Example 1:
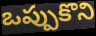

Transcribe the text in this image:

ఒప్పుకొని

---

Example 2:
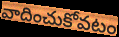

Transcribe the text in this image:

వాదించుకోవటం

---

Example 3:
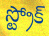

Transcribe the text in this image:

స్ట్రోక్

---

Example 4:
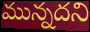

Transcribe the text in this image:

మున్నదని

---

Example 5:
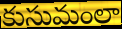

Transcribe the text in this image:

కుసుమంలా